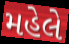
મહેલે